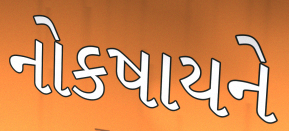
નોકષાયને